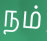
நம்